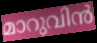
മാറുവിൻ